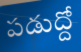
పడుద్దో